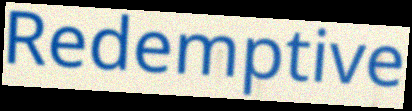
Redemptive